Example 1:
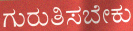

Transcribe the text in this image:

ಗುರುತಿಸಬೇಕು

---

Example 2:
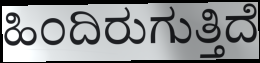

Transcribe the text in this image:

ಹಿಂದಿರುಗುತ್ತಿದೆ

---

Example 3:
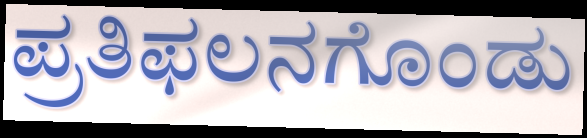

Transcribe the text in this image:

ಪ್ರತಿಫಲನಗೊಂಡು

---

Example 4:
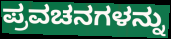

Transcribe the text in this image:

ಪ್ರವಚನಗಳನ್ನು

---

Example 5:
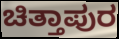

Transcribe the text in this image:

ಚಿತ್ತಾಪುರ